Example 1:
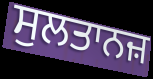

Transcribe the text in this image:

ਸੁਲਤਾਨਜ਼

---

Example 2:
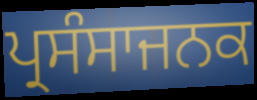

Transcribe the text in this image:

ਪ੍ਰਸੰਸਾਜਨਕ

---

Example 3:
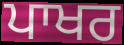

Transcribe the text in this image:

ਪਾਖਰ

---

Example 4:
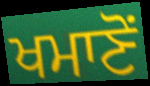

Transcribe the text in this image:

ਖਮਾਣੋਂ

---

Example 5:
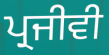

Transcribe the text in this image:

ਪ੍ਰਜੀਵੀ